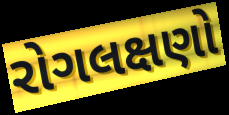
રોગલક્ષણો